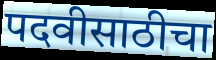
पदवीसाठीचा